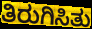
ತಿರುಗಿಸಿತು